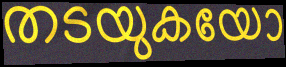
തടയുകയോ